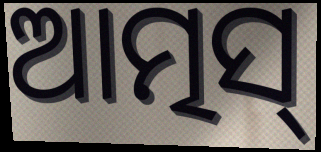
ଆତ୍ମସ୍